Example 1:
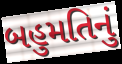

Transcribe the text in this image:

બહુમતિનું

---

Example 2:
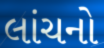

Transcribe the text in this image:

લાંચનો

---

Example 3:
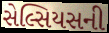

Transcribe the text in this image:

સેલ્સિયસની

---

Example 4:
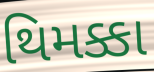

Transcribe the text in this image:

થિમક્કા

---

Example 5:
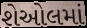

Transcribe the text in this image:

શેઓલમાં